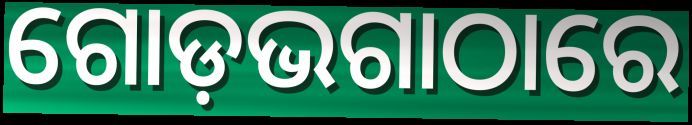
ଗୋଡ଼ଭଗାଠାରେ